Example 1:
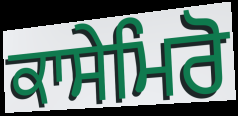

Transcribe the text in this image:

ਕਾਸੇਮਿਰੋ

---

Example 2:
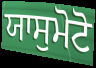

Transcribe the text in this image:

ਯਾਸੁਮੋਟੋ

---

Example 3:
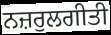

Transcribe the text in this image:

ਨਜ਼ਰੁਲਗੀਤੀ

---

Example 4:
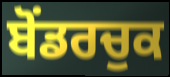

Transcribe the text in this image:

ਬੋਂਡਰਚੁਕ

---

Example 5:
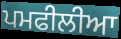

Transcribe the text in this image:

ਪਮਫੀਲੀਆ